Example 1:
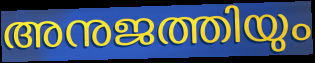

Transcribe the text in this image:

അനുജത്തിയും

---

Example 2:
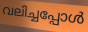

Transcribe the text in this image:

വലിച്ചപ്പോൾ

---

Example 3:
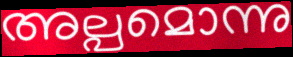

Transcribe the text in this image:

അല്പമൊന്നു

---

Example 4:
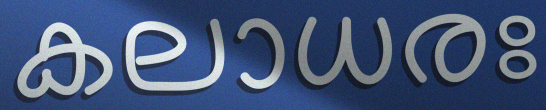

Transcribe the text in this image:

കലാധരഃ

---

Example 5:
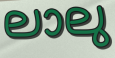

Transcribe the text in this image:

ലാലു